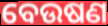
ବେଉଷଣ